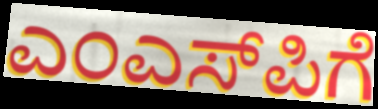
ಎಂಎಸ್‌ಪಿಗೆ